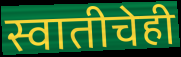
स्वातीचेही